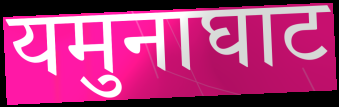
यमुनाघाट